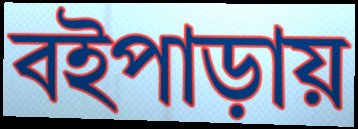
বইপাড়ায়